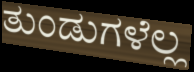
ತುಂಡುಗಳೆಲ್ಲ